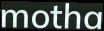
motha